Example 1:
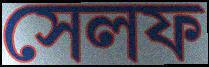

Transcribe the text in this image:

সেলফ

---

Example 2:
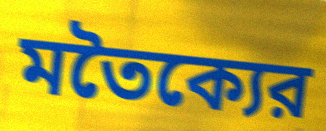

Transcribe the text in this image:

মতৈক্যের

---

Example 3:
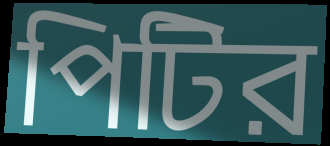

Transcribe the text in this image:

পিটির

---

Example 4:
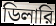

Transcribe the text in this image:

ডিলারি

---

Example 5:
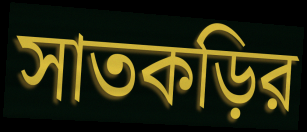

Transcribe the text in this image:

সাতকড়ির